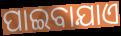
ପାଇବାଯାଏ